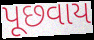
પૂછવાય